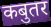
कबुतर